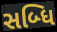
સબ્ધિ